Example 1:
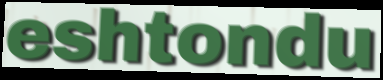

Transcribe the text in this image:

eshtondu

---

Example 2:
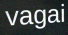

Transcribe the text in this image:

vagai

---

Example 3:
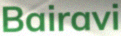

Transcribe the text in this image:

Bairavi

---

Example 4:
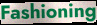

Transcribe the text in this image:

Fashioning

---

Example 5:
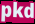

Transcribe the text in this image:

pkd